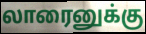
லாரைனுக்கு